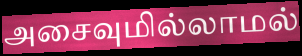
அசைவுமில்லாமல்